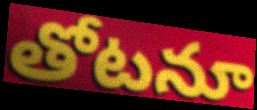
తోటనూ